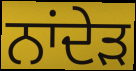
ਨਾਂਦੇੜ